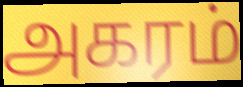
அகரம்